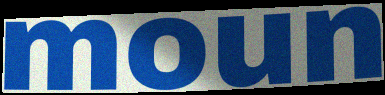
moun